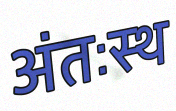
अंतःस्थ